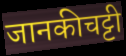
जानकीचट्टी